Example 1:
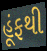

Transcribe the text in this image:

હૂંફથી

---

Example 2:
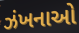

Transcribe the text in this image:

ઝંખનાઓ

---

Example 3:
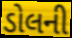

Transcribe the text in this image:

ડોલની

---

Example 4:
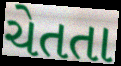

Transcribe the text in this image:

ચેતતા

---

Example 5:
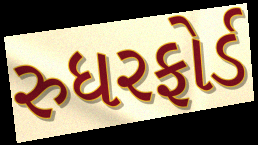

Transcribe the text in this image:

રુધરફોર્ડ